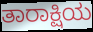
ತಾರಾಕ್ಷಿಯ